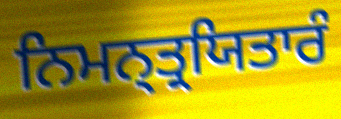
ਨਿਮਨ੍ਤ੍ਰਯਿਤਾਰੰ